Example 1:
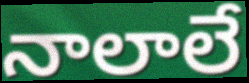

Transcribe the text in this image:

నాలాలే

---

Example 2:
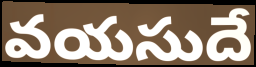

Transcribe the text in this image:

వయసుదే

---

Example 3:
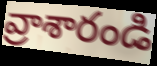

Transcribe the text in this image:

వ్రాశారండి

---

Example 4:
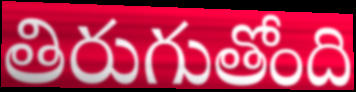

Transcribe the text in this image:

తిరుగుతోంది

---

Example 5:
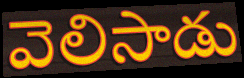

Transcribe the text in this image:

వెలిసాడు